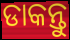
ଡାକନ୍ତୁ